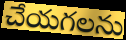
చేయగలను